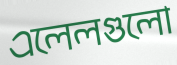
এলেলগুলো